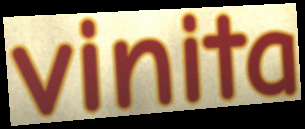
vinita